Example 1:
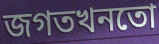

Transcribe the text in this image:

জগতখনতো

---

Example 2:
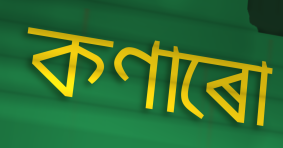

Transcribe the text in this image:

কণাৰো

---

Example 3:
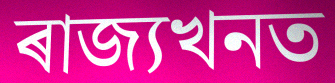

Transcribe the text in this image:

ৰাজ্যখনত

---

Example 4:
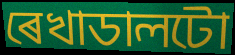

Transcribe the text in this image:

ৰেখাডালটো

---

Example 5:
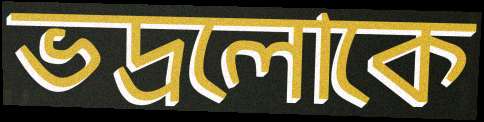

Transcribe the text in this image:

ভদ্ৰলোকে